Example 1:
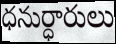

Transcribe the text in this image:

ధనుర్ధారులు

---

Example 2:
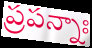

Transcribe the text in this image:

ప్రపన్నాః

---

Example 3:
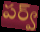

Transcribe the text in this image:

పర్వ్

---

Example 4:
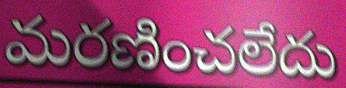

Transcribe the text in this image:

మరణించలేదు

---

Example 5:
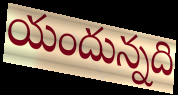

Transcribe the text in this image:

యందున్నది